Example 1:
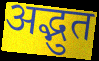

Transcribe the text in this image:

अद्भुत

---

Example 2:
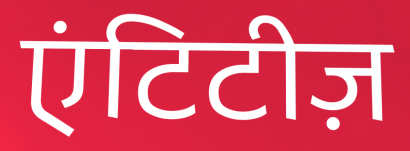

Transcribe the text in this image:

एंटिटीज़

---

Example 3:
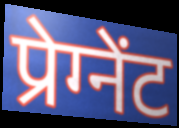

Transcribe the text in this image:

प्रेग्‍नेंट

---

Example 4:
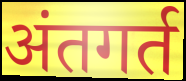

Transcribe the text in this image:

अंतगर्त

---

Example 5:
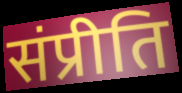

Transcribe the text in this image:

संप्रीति